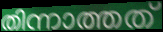
തിന്നാത്തത്